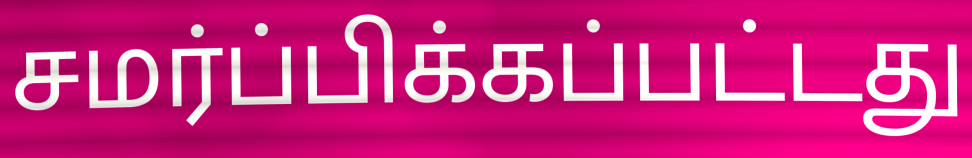
சமர்ப்பிக்கப்பட்டது